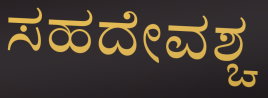
ಸಹದೇವಶ್ಚ